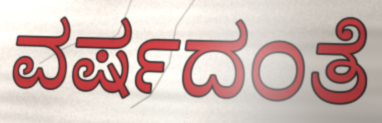
ವರ್ಷದಂತೆ